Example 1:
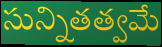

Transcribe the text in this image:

సున్నితత్వమే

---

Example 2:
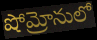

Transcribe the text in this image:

షోమ్రోనులో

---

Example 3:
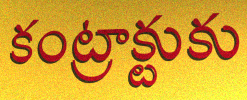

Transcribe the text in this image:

కంట్రాక్టుకు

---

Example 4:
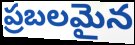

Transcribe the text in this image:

ప్రబలమైన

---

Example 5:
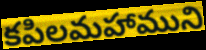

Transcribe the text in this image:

కపిలమహాముని